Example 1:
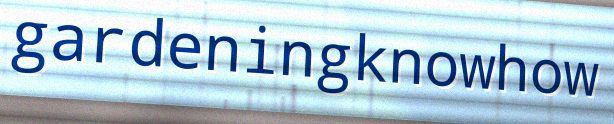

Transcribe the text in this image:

gardeningknowhow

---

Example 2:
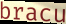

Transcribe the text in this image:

bracu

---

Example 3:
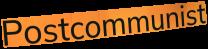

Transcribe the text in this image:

Postcommunist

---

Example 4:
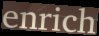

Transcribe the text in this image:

enrich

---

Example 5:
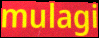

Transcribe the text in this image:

mulagi